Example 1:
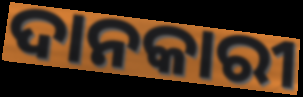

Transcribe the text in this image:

ଦାନକାରୀ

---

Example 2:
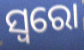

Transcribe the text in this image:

ସ୍ୱରୋ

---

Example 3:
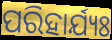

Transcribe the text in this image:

ପରିହାର୍ଯ୍ୟଃ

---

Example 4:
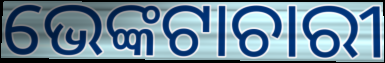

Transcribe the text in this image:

ଭେଙ୍କଟାଚାରୀ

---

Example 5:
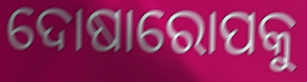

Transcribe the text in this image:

ଦୋଷାରୋପକୁ